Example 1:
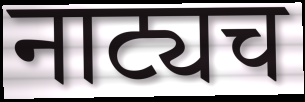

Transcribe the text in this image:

नाट्यच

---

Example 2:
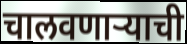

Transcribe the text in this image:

चालवणाऱ्याची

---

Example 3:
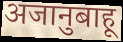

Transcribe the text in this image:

अजानुबाहू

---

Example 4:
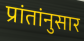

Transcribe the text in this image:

प्रांतांनुसार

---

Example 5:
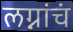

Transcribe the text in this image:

लग्नांचं